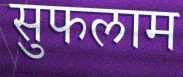
सुफलाम